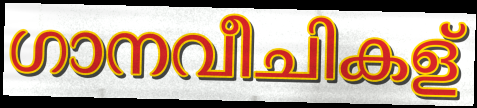
ഗാനവീചികള്